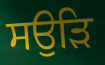
ਸਉੜਿ